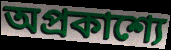
অপ্রকাশ্যে